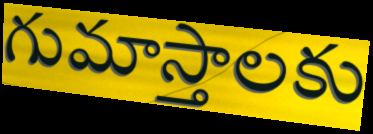
గుమాస్తాలకు